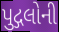
પુદ્ગલોની